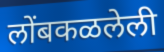
लोंबकळलेली